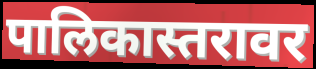
पालिकास्तरावर